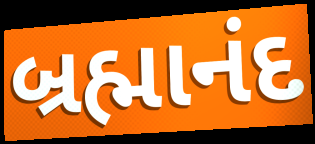
બ્રહ્માનંદ